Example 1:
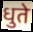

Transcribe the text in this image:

धुते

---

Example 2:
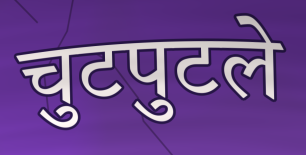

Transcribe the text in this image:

चुटपुटले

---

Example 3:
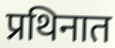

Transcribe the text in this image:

प्रथिनात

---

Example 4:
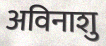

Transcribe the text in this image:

अविनाशु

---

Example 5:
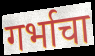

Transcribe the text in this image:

गर्भाचा